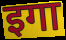
इगा